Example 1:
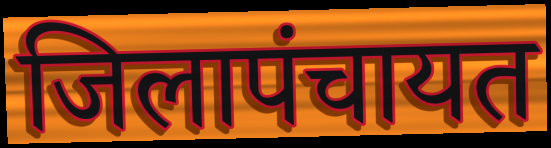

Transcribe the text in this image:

जिलापंचायत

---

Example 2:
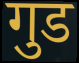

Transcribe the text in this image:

गुड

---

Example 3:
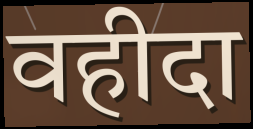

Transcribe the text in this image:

वहीदा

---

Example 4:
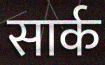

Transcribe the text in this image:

सार्क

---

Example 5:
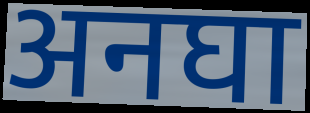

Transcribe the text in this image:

अनघा